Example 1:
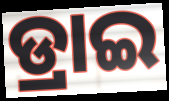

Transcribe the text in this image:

ଡ୍ରାଇ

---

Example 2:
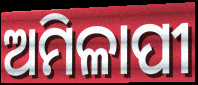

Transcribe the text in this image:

ଅମିଳାପୀ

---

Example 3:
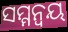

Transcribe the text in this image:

ସମ୍ମନ୍ୱୟ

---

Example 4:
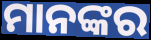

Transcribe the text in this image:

ମାନଙ୍କର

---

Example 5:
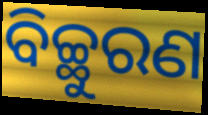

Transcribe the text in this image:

ବିଚ୍ଛୁରଣ